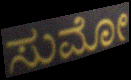
ಸುಮೋ